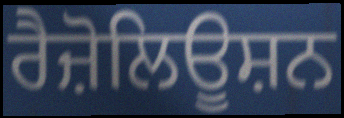
ਰੈਜ਼ੋਲਿਊਸ਼ਨ